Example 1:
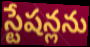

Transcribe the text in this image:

స్టేషన్లను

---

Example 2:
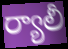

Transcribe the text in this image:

ర్యాలీ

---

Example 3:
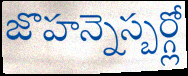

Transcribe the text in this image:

జొహన్నెస్బర్గ్లో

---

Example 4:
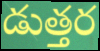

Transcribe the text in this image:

డుత్తర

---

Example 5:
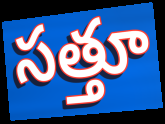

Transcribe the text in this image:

సత్తూ